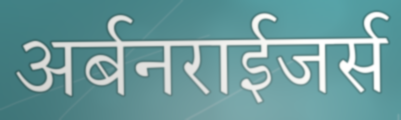
अर्बनराईजर्स